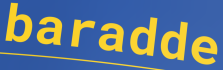
baradde